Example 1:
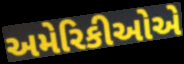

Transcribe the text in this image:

અમેરિકીઓએ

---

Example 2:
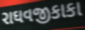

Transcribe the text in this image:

રાઘવજીકાકા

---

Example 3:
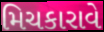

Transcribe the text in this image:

મિચકારાવે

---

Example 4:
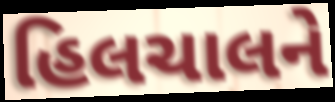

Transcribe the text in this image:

હિલચાલને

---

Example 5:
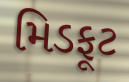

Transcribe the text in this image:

મિડફૂટ